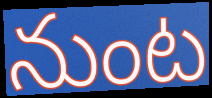
నుంట